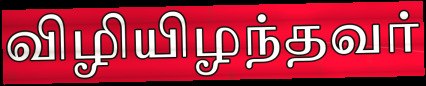
விழியிழந்தவர்